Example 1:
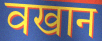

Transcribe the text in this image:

वखान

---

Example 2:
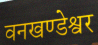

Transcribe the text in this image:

वनखण्डेश्वर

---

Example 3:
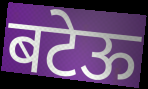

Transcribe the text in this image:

बटेऊ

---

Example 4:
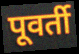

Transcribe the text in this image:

पूवर्ती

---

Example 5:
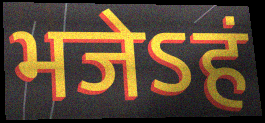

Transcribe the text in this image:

भजेऽहं